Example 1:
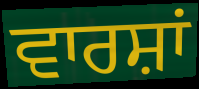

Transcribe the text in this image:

ਵਾਰਸ਼ਾਂ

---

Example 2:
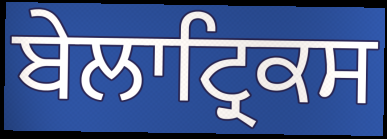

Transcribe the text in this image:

ਬੇਲਾਟ੍ਰਿਕਸ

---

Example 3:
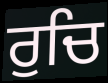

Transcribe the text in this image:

ਰੁਚਿ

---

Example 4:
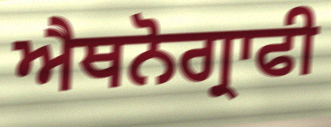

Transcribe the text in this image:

ਐਥਨੋਗ੍ਰਾਫੀ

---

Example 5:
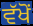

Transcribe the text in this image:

ਵੱਖੋਂ